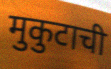
मुकुटाची